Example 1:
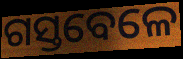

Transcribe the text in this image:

ଗସ୍ତବେଳେ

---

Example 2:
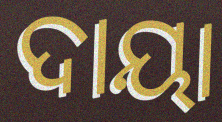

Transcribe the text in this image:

ଦାୟା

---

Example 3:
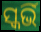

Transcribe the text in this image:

ସ୍କର୍ଭି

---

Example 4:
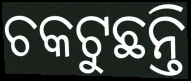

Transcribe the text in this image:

ଚକଟୁଛନ୍ତି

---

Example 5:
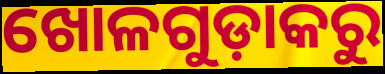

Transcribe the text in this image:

ଖୋଳଗୁଡ଼ାକରୁ